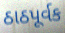
ઠાઠપૂર્વક